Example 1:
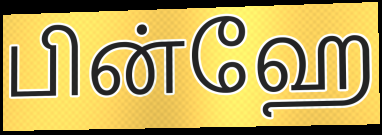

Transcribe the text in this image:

பின்ஹே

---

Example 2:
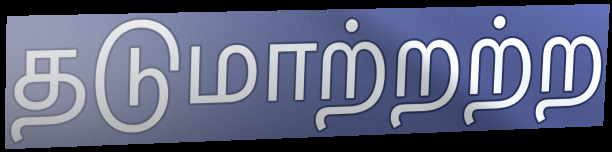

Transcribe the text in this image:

தடுமாற்றற்ற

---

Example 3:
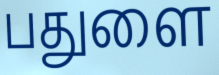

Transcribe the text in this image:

பதுளை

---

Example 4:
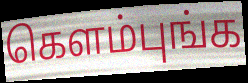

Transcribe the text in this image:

கெளம்புங்க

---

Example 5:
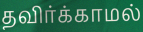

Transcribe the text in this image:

தவிர்க்காமல்